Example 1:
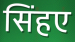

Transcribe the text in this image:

सिंहए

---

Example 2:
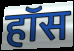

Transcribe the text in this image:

हॉस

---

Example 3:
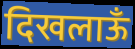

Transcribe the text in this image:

दिखलाऊँ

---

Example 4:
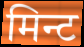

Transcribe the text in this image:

मिन्ट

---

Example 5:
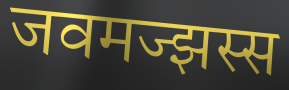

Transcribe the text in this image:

जवमज्झस्स